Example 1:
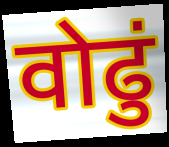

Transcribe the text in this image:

वोढुं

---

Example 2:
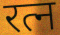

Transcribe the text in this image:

रत्न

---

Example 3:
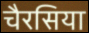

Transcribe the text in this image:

चैरसिया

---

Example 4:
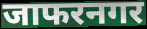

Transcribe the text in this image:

जाफरनगर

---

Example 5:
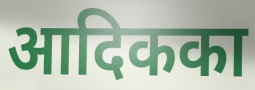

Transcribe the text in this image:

आदिकका